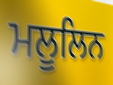
ਮਲੂਲਿਨ